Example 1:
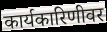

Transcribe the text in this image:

कार्यकारिणीवर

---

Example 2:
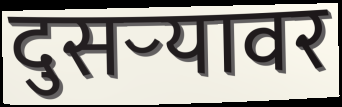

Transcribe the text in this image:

दुसऱ्यावर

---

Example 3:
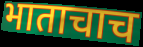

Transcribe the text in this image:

भाताचाच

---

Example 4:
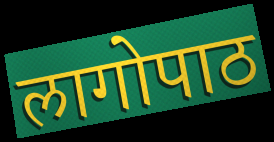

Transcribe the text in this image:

लागोपाठ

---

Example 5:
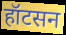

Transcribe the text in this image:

हॉटसन